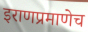
इराणप्रमाणेच